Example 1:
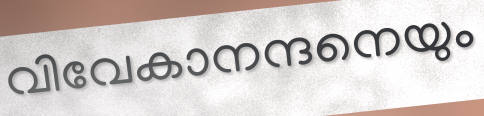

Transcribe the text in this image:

വിവേകാനന്ദനെയും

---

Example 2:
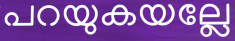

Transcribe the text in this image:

പറയുകയല്ലേ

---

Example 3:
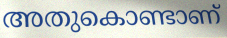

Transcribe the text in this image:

അതുകൊണ്ടാണ്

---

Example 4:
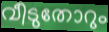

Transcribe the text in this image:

വീടുതോറും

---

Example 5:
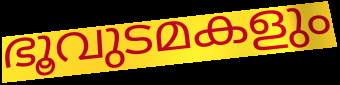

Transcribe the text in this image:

ഭൂവുടമകളും